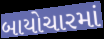
બાયોચારમાં